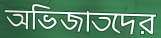
অভিজাতদের